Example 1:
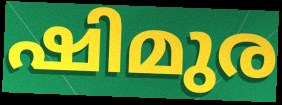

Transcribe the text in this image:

ഷിമുര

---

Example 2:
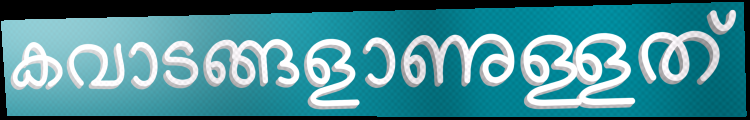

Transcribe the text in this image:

കവാടങ്ങളാണുള്ളത്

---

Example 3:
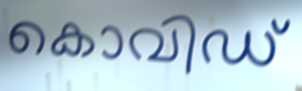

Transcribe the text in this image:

കൊവിഡ്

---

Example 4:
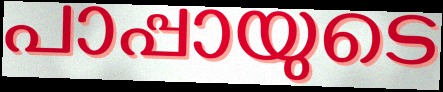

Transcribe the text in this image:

പാപ്പായുടെ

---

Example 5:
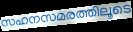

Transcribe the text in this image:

സഹനസമരത്തിലൂടെ